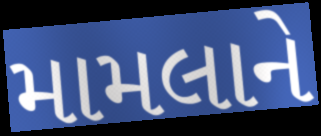
મામલાને